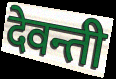
देवन्ती